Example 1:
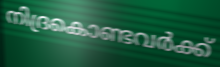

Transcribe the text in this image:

നിദ്രകൊണ്ടവർക്ക്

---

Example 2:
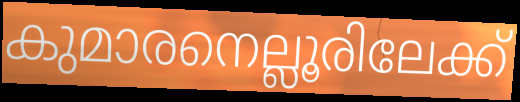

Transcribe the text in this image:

കുമാരനെല്ലൂരിലേക്ക്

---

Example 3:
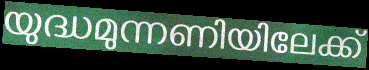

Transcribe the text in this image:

യുദ്ധമുന്നണിയിലേക്ക്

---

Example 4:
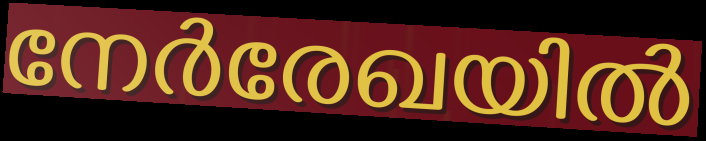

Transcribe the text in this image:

നേർരേഖയിൽ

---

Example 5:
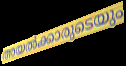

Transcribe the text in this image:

അയൽക്കാരുടെയും